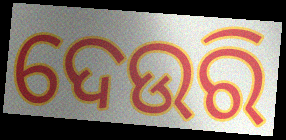
ଦେଉରି